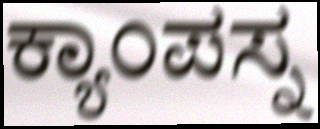
ಕ್ಯಾಂಪಸ್ನ